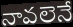
నావలెనే